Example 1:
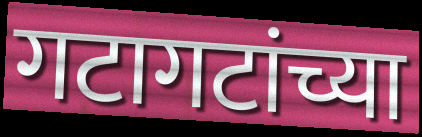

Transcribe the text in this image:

गटागटांच्या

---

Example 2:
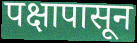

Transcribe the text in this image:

पक्षापासून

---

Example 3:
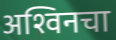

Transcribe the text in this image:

अश्विनचा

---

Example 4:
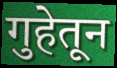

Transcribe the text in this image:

गुहेतून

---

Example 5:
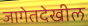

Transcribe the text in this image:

जागेतदेखील